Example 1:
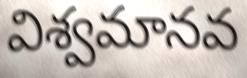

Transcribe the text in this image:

విశ్వమానవ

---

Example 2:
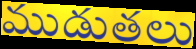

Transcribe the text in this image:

ముడుతలు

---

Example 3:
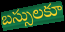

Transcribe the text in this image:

బస్సులకూ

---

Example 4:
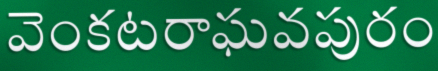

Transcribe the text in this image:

వెంకటరాఘవపురం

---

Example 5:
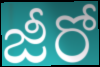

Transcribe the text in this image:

జీరో